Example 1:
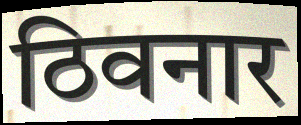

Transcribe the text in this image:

ठिवनार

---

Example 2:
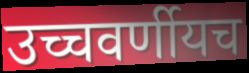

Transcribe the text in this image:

उच्चवर्णीयच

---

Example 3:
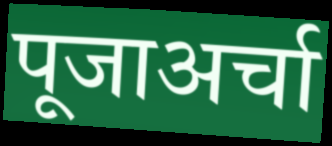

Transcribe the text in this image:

पूजाअर्चा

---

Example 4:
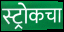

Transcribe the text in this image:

स्ट्रोकचा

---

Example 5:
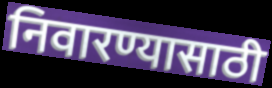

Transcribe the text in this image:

निवारण्यासाठी